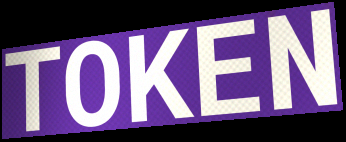
TOKEN